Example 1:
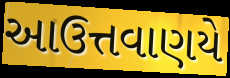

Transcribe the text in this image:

આઉત્તવાણયે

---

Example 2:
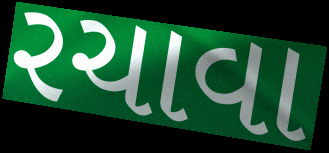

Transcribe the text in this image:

રચાવા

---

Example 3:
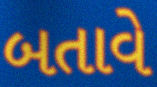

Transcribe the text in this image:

બતાવે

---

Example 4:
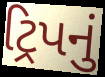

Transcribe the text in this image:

ટ્રિપનું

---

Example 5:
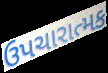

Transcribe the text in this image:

ઉપચારાત્મક